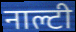
नाल्टी